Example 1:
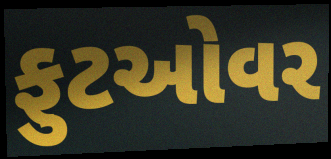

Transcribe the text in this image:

ફુટઓવર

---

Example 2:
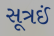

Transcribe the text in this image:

સૂત્રઈં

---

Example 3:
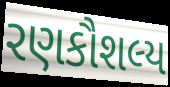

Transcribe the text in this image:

રણકૌશલ્ય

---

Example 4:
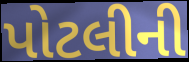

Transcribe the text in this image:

પોટલીની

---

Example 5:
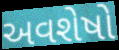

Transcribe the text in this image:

અવશેષો